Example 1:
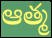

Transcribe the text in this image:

ఆత్మ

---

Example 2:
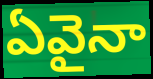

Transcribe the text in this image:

ఏవైనా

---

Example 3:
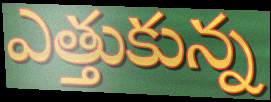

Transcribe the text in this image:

ఎత్తుకున్న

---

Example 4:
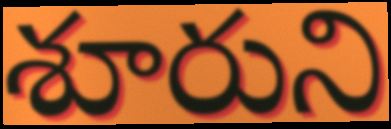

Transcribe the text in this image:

శూరుని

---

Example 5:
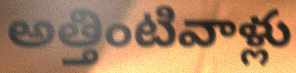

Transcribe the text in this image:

అత్తింటివాళ్లు